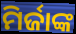
ମିର୍ଜାଙ୍କ